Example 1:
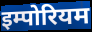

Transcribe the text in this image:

इम्पोरियम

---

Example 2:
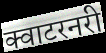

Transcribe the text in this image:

क्वाटरनरी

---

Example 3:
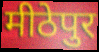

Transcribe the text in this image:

मीठेपुर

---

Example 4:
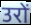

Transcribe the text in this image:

उरों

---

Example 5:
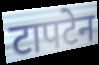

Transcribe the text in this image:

टापटेन